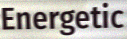
Energetic